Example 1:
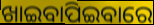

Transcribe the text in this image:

ଖାଇବାପିଇବାରେ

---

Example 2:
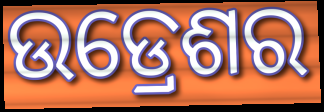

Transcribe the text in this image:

ଉଡ୍ରେଶର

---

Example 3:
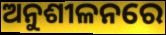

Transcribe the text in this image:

ଅନୁଶୀଳନରେ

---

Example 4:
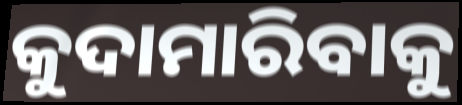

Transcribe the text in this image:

କୁଦାମାରିବାକୁ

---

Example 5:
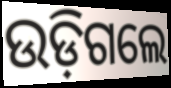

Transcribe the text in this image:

ଉଡ଼ିଗଲେ